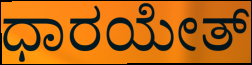
ಧಾರಯೇತ್